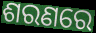
ଶରଣରେ